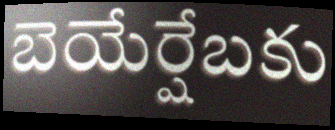
బెయేర్షేబకు